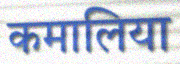
कमालिया